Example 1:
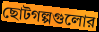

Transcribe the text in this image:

ছোটগল্পগুলোর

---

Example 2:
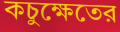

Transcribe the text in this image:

কচুক্ষেতের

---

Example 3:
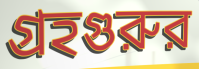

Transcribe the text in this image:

গ্রহগুরুর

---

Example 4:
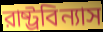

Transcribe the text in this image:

রাষ্ট্রবিন্যাস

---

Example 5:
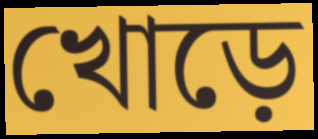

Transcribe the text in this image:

খোড়ে